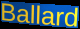
Ballard